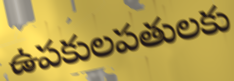
ఉపకులపతులకు